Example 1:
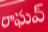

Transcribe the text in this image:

రాఘవ్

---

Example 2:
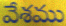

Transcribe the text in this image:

వేశము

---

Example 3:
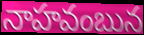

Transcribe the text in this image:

నాహవంబున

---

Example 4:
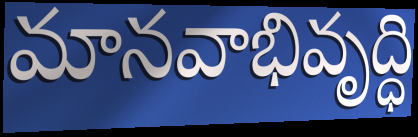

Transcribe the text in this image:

మానవాభివృద్ధి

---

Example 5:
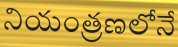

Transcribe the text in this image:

నియంత్రణలోనే